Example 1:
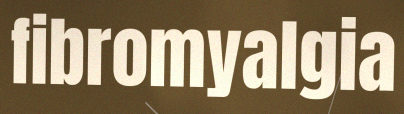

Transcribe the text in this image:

fibromyalgia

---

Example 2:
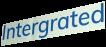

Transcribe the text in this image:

Intergrated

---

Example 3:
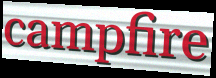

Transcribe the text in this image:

campfire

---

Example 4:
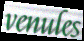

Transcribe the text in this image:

venules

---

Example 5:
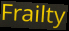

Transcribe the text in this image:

Frailty